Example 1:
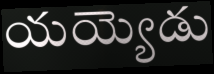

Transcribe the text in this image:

యయ్యెడు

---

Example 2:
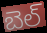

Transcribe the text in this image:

బెల్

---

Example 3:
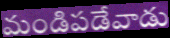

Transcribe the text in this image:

మండిపడేవాడు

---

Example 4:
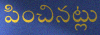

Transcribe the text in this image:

పించినట్లు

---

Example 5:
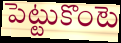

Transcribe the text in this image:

పెట్టుకొంటె